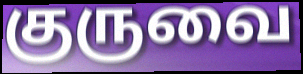
குருவை